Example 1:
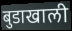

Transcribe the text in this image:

बुडाखाली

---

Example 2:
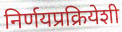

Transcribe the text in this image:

निर्णयप्रक्रियेशी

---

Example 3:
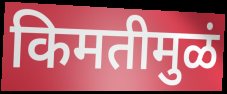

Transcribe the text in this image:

किमतीमुळं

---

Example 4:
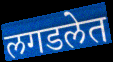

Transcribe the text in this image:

लगडलेत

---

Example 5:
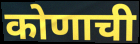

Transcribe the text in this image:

कोणाची